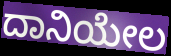
ದಾನಿಯೇಲ